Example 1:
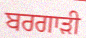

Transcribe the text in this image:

ਬਰਗਾੜੀ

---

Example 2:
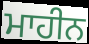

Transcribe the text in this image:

ਮਾਹੀਨ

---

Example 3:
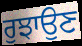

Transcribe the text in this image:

ਰੁਝਾਉਣ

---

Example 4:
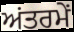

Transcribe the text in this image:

ਅਂਤਰਮੇਂ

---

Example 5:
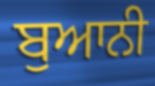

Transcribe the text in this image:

ਬੁਆਨੀ